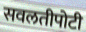
सवलतीपोटी